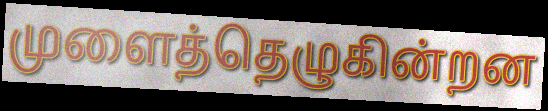
முளைத்தெழுகின்றன